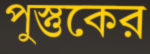
পুস্তুকের